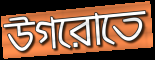
উগরোতে